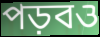
পড়বও